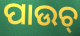
ପାଉଚ୍